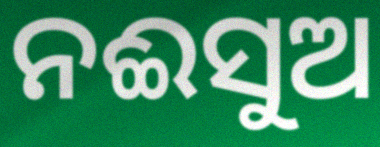
ନଈସୁଅ